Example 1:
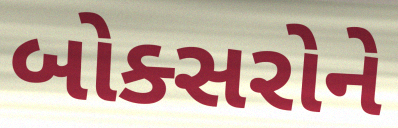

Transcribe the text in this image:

બોક્સરોને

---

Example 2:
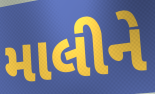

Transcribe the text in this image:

માલીને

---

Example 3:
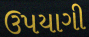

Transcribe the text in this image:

ઉપયાગી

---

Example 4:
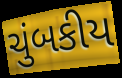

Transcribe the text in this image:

ચુંબકીય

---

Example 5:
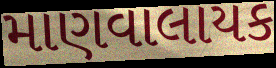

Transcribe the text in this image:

માણવાલાયક